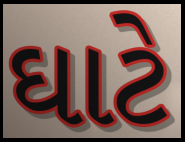
ઘાટે